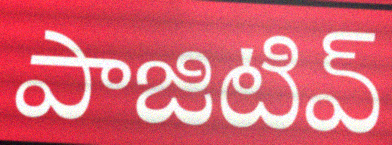
పాజిటివ్